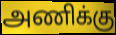
அணிக்கு